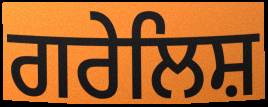
ਗਰੇਲਿਸ਼